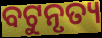
ବଟୁନୃତ୍ୟ